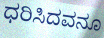
ಧರಿಸಿದವನೂ